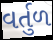
વર્તુળ